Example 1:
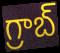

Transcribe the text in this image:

గ్రాబ్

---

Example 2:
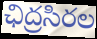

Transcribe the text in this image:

ఛిద్రసిరల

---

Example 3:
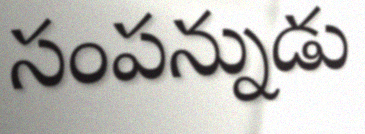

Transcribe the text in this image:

సంపన్నుడు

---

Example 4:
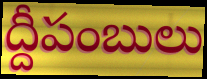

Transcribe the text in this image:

ద్దీపంబులు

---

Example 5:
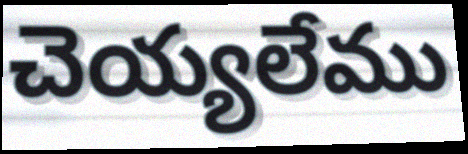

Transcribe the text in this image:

చెయ్యలేము